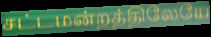
சட்டமன்றத்திலேயே